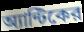
অ্যান্টিকের